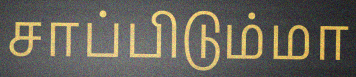
சாப்பிடும்மா